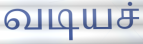
வடியச்